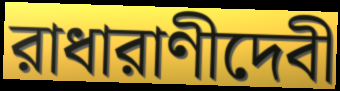
রাধারাণীদেবী